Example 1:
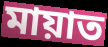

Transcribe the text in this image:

মায়াত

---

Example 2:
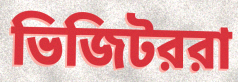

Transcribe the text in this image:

ভিজিটররা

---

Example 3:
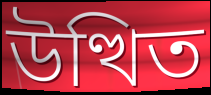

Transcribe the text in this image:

উত্থিত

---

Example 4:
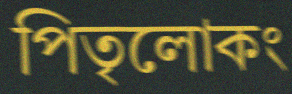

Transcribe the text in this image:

পিতৃলোকং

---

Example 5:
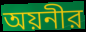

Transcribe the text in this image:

অয়নীর